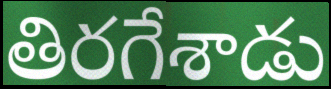
తిరగేశాడు